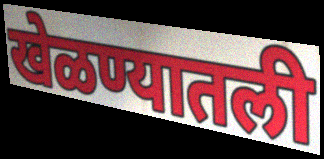
खेळण्यातली